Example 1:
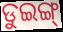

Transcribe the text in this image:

ଡୁଇଙ୍ଗ୍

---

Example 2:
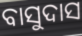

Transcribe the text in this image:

ବାସୁଦାସ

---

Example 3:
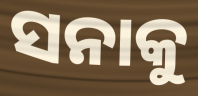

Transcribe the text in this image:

ସନାକୁ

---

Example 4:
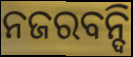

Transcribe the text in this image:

ନଜରବନ୍ଦି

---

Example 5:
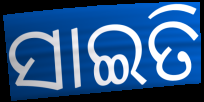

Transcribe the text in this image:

ସାଇତି